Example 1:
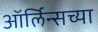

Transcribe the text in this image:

ऑर्लिन्सच्या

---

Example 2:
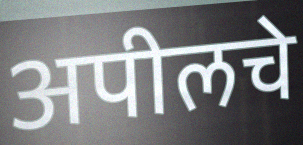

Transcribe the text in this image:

अपीलचे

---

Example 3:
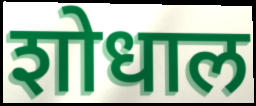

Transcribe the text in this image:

शोधाल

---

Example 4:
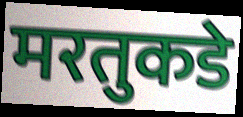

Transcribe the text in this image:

मरतुकडे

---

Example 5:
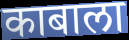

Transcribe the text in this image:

काबाला